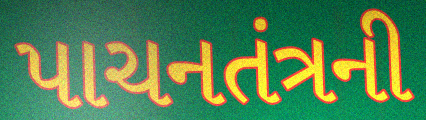
પાચનતંત્રની